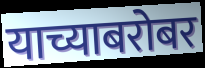
याच्याबरोबर